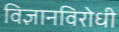
विज्ञानविरोधी